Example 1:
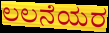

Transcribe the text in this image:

ಲಲನೆಯರ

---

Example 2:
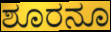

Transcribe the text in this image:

ಶೂರನೂ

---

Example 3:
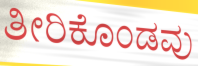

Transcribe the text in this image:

ತೀರಿಕೊಂಡವು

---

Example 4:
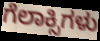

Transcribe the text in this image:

ಗೆಲಾಕ್ಸಿಗಳು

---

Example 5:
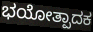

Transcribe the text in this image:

ಭಯೋತ್ಪಾದಕ